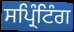
ਸਪ੍ਰਿੰਟਿੰਗ